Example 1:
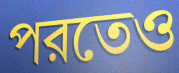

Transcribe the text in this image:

পরতেও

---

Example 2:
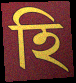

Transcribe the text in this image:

হি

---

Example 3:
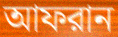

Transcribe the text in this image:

আফরান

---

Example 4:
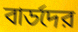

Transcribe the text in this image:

বার্ডদের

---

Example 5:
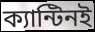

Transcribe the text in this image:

ক্যান্টিনই